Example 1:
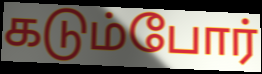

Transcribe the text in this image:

கடும்போர்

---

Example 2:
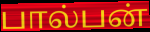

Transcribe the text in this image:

பால்பன்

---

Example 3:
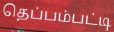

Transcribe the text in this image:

தெப்பம்பட்டி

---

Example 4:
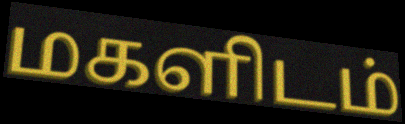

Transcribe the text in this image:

மகளிடம்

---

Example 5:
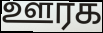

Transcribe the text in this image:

ஊரக